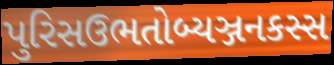
પુરિસઉભતોબ્યઞ્જનકસ્સ